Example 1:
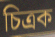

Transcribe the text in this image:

চিত্ৰক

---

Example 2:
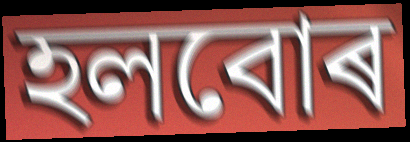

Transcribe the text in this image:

হলবোৰ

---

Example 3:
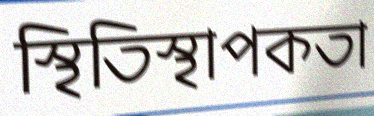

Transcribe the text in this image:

স্থিতিস্থাপকতা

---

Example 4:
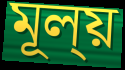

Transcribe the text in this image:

মূল্য়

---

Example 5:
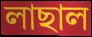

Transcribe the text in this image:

লাছাল